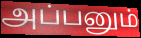
அப்பனும்